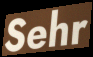
Sehr